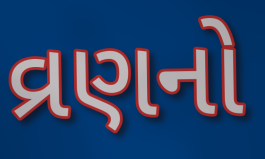
વ્રણનો